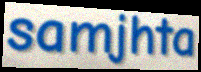
samjhta